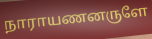
நாராயணனருளே